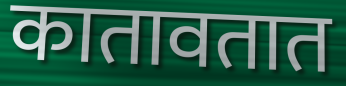
कातावतात